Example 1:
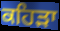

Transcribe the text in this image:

ਕਹਿੜਾ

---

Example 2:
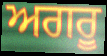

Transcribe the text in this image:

ਅਗਰੂ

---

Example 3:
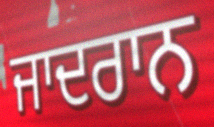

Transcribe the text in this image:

ਜਾਦਰਾਨ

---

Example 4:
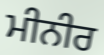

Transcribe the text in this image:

ਮੀਨੀਰ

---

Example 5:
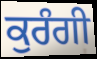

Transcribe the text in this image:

ਕੁਰੰਗੀ